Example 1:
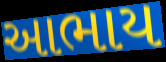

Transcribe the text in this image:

આભાય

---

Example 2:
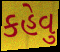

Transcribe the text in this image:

કહેવુ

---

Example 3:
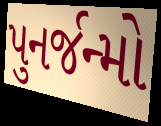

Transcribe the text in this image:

પુનર્જન્મો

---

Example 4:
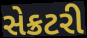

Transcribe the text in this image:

સેક્રટરી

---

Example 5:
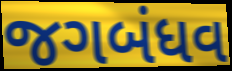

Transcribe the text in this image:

જગબંધવ